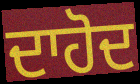
ਦਾਹੋਦ